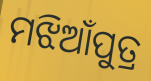
ମଝିଆଁପୁତ୍ର